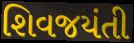
શિવજયંતી